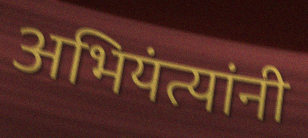
अभियंत्यांनी